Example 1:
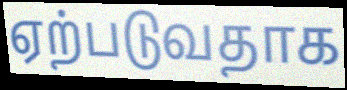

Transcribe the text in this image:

ஏற்படுவதாக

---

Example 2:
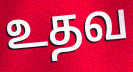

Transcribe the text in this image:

உதவ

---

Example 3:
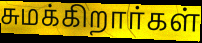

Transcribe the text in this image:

சுமக்கிறார்கள்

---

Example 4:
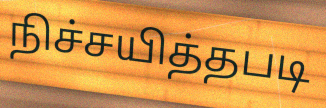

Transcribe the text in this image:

நிச்சயித்தபடி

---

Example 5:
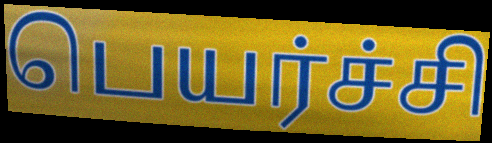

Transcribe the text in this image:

பெயர்ச்சி